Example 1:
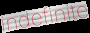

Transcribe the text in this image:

indefinite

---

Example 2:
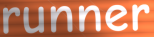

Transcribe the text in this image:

runner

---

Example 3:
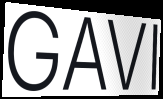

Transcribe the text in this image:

GAVI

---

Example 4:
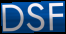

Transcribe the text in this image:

DSF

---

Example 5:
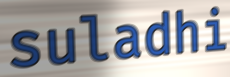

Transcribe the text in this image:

suladhi